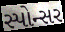
સ્પોન્સર